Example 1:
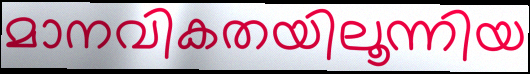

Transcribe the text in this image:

മാനവികതയിലൂന്നിയ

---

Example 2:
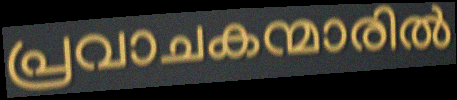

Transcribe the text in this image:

പ്രവാചകന്മാരിൽ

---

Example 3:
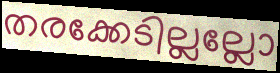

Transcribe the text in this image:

തരക്കേടില്ലല്ലോ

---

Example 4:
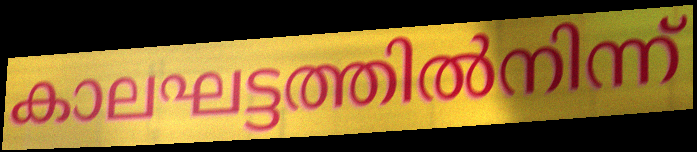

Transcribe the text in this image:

കാലഘട്ടത്തിൽനിന്ന്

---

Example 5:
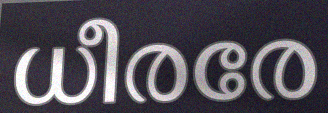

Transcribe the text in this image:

ധീരരേ